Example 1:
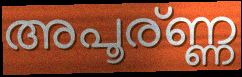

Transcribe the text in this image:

അപൂര്ണ്ണ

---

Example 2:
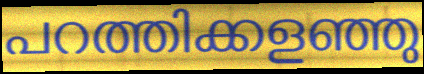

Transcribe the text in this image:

പറത്തിക്കളഞ്ഞു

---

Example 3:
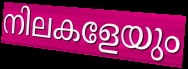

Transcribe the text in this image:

നിലകളേയും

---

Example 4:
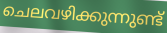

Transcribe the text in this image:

ചെലവഴിക്കുന്നുണ്ട്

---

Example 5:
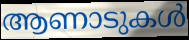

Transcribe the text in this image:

ആണാടുകൾ